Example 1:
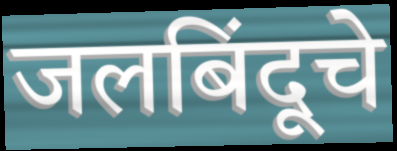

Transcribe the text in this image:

जलबिंदूचे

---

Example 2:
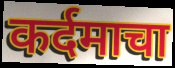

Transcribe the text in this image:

कर्दमाचा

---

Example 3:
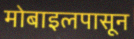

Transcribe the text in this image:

मोबाइलपासून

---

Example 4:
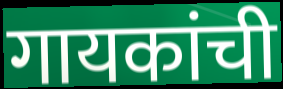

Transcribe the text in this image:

गायकांची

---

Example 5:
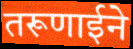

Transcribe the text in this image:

तरूणाईने